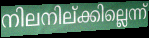
നിലനില്ക്കില്ലെന്ന്